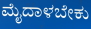
ಮೈದಾಳಬೇಕು